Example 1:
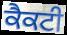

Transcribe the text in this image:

ਕੈਕਟੀ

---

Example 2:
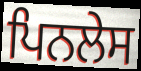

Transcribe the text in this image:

ਪਿਨਲੇਸ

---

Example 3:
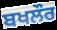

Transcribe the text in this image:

ਬਖਲੌਰ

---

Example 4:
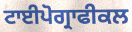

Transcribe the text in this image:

ਟਾਈਪੋਗ੍ਰਾਫੀਕਲ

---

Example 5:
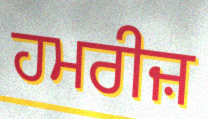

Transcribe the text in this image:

ਹਮਰੀਜ਼